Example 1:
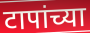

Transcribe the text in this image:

टापांच्या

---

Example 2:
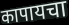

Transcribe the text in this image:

कापायचा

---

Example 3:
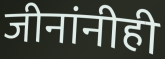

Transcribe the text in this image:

जीनांनीही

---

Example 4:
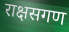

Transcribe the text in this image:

राक्षसगण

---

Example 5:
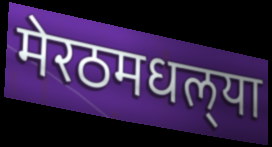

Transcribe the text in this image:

मेरठमधल्या